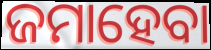
ଜମାହେବା